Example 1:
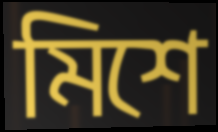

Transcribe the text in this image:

মিশে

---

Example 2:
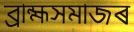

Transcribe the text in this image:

ব্ৰাহ্মসমাজৰ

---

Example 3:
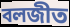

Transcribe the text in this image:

বলজীত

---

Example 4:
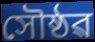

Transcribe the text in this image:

সৌষ্ঠৱ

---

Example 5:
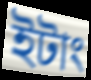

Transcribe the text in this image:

ইটাং